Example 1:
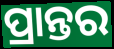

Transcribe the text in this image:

ପ୍ରାନ୍ତର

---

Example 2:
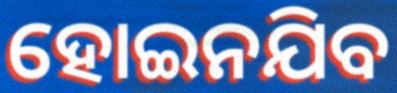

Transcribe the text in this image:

ହୋଇନଯିବ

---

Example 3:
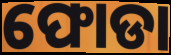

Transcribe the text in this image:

ଫୋଡା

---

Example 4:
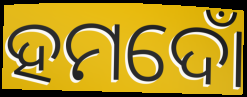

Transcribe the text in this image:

ହମଦୋଁ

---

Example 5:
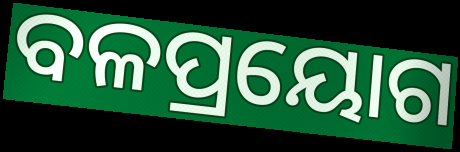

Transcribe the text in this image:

ବଳପ୍ରୟୋଗ